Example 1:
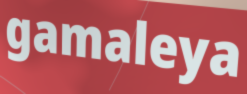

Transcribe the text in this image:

gamaleya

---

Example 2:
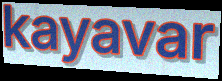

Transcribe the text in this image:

kayavar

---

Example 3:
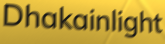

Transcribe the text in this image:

Dhakainlight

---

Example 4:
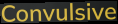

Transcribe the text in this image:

Convulsive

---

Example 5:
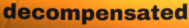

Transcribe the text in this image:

decompensated